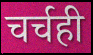
चर्चही